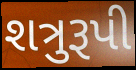
શત્રુરૂપી